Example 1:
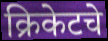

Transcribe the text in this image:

क्रिकेटचे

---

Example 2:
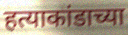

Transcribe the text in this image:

हत्याकांडाच्या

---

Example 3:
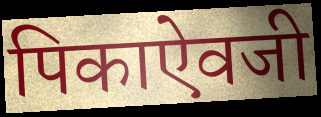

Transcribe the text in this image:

पिकाऐवजी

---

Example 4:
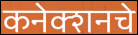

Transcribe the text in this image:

कनेक्शनचे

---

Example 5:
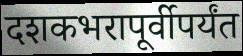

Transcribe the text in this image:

दशकभरापूर्वीपर्यंत